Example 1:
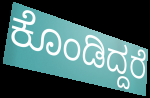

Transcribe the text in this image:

ಕೊಂಡಿದ್ದರೆ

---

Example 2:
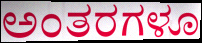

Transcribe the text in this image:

ಅಂತರಗಳೂ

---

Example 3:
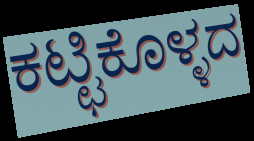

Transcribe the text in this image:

ಕಟ್ಟಿಕೊಳ್ಳದ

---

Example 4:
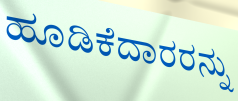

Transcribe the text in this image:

ಹೂಡಿಕೆದಾರರನ್ನು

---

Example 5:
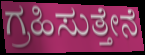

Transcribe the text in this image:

ಗ್ರಹಿಸುತ್ತೇನೆ